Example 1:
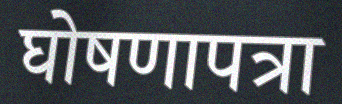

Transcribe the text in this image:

घोषणापत्रा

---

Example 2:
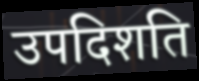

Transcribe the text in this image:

उपदिशति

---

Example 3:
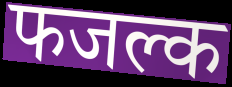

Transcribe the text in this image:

फजल्क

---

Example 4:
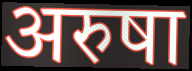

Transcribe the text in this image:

अरुषा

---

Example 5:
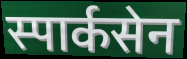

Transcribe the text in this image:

स्पार्कसेन